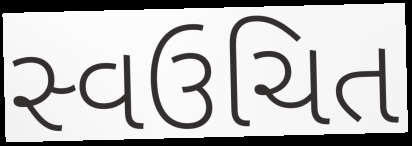
સ્વઉચિત